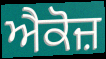
ਐਕੋਜ਼